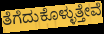
ತೆಗೆದುಕೊಳ್ಳುತ್ತೇವೆ